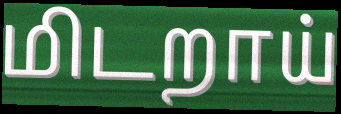
மிடறாய்